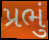
પ્રભું